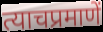
त्याचप्रमाणें